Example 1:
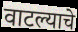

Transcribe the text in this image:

वाटल्याचे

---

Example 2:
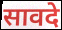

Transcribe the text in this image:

सावदे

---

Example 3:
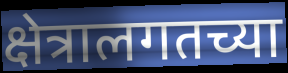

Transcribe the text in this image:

क्षेत्रालगतच्या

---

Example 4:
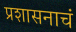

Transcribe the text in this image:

प्रशासनाचं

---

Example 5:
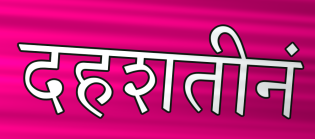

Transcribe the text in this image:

दहशतीनं